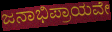
ಜನಾಭಿಪ್ರಾಯವೇ